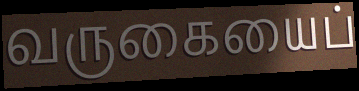
வருகையைப்